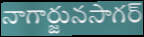
నాగార్జునసాగర్